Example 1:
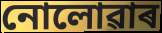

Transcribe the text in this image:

নোলোৱাৰ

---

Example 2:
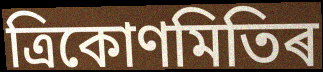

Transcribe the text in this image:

ত্ৰিকোণমিতিৰ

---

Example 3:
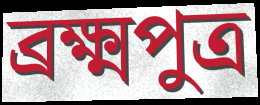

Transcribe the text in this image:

ব্ৰক্ষ্মপুত্ৰ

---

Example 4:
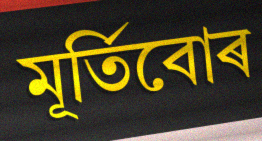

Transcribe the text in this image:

মূৰ্তিবোৰ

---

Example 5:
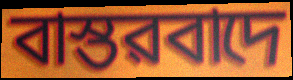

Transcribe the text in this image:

বাস্তৱবাদে